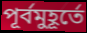
পূর্বমুহূর্তে